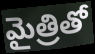
మైత్రితో